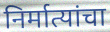
निर्मात्यांचा